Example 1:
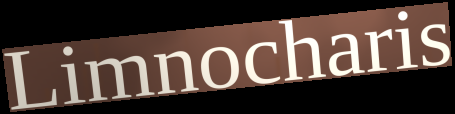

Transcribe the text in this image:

Limnocharis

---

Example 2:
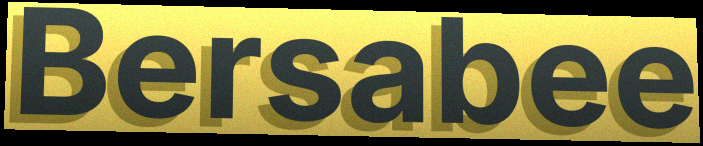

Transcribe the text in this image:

Bersabee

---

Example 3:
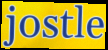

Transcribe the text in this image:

jostle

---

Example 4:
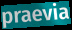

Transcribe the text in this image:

praevia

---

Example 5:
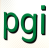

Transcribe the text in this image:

pgi